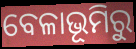
ବେଳାଭୂମିରୁ